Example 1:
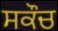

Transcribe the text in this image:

ਸਕੌਚ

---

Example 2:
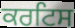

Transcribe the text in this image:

ਕਰਟਿਸ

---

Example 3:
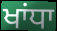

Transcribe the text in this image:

ਖਾਂਧਾ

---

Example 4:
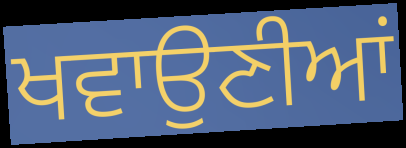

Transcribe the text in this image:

ਖਵਾਉਣੀਆਂ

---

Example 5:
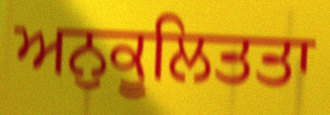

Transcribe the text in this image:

ਅਨੁਕੂਲਿਤਤਾ